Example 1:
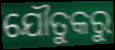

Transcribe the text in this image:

ଯୌତୁକରୁ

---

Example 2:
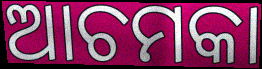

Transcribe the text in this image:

ଆଚମକା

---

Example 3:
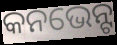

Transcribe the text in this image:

କନଭେନ୍ଟ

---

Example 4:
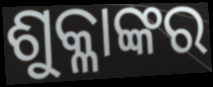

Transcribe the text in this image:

ଶୁକ୍ଳାଙ୍କର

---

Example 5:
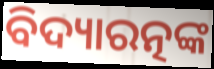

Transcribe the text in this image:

ବିଦ୍ୟାରତ୍ନଙ୍କ